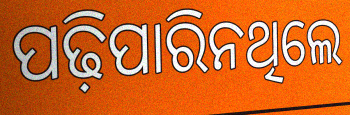
ପଢ଼ିପାରିନଥିଲେ